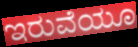
ಇರುವೆಯೂ